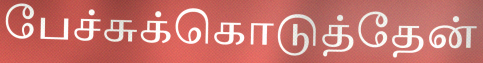
பேச்சுக்கொடுத்தேன்